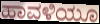
ಹಾವಳಿಯೂ